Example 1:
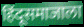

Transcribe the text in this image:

हिंदूसमाजाला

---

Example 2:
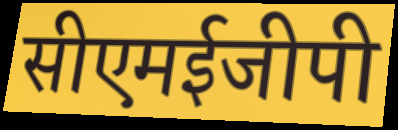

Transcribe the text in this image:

सीएमईजीपी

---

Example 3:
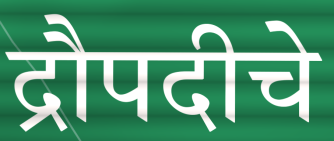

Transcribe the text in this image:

द्रौपदीचे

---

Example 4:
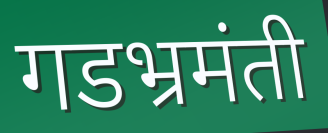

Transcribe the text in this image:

गडभ्रमंती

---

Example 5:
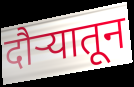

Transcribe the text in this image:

दौर्‍यातून